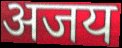
अजय